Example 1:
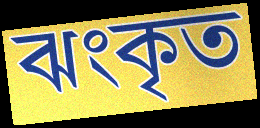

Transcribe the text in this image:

ঝংকৃত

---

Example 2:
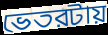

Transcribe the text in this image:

ভেতরটায়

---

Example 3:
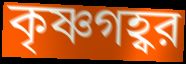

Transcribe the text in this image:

কৃষ্ণগহ্বর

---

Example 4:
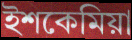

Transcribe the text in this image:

ইশকেমিয়া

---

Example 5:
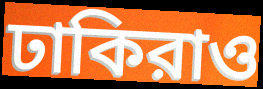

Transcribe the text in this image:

ঢাকিরাও